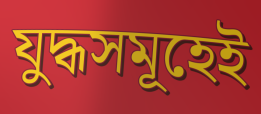
যুদ্ধসমূহেই